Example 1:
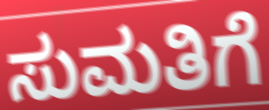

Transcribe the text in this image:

ಸುಮತಿಗೆ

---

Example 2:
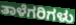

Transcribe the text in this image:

ತಾಳೆಗರಿಗಳು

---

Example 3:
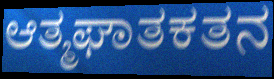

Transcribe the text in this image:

ಆತ್ಮಘಾತಕತನ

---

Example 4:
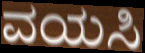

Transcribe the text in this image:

ವಯಸಿ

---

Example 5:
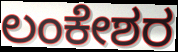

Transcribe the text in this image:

ಲಂಕೇಶರ